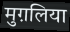
मुग़लिया